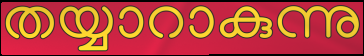
തയ്യാറാകുന്നു